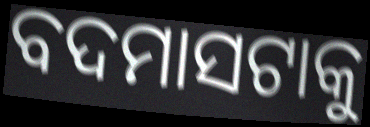
ବଦମାସଟାକୁ